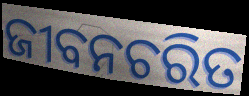
ଜୀବନଚରିତ